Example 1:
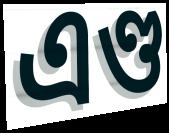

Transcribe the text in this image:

এণ্ড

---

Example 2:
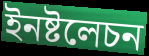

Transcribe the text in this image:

ইনষ্টলেচন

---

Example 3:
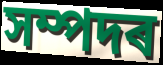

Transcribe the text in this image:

সম্পদৰ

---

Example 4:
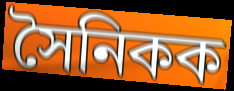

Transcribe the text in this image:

সৈনিকক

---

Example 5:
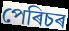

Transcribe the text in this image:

পেৰিচৰ